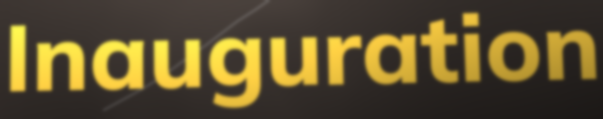
Inauguration